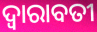
ଦ୍ଵାରାବତୀ